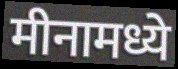
मीनामध्ये